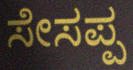
ಸೇಸಪ್ಪ